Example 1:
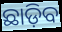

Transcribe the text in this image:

ଛାଡ଼ିବ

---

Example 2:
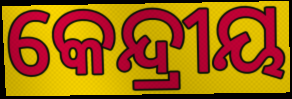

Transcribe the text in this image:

କେନ୍ଦ୍ରୀୟ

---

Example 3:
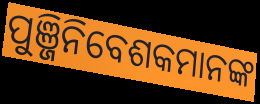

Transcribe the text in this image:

ପୁଞ୍ଜିନିବେଶକମାନଙ୍କ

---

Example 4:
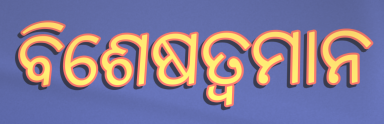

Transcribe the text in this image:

ବିଶେଷତ୍ଵମାନ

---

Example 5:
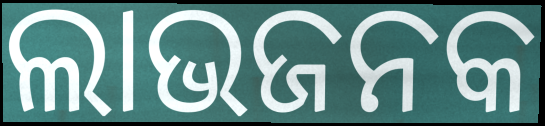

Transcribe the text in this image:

ଲାଭଜନକ